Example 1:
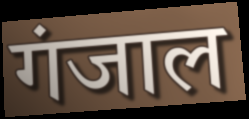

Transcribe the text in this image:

गंजाल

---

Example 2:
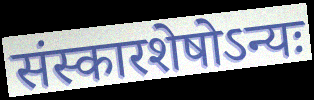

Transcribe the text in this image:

संस्कारशेषोऽन्यः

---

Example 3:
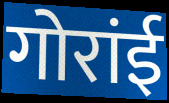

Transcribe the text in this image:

गोरांई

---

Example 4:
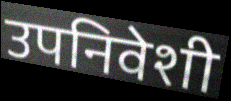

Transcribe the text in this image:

उपनिवेशी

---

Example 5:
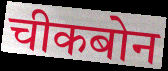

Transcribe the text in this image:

चीकबोन